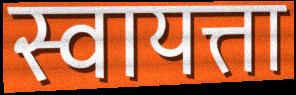
स्वायत्ता